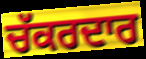
ਚੱਕਰਦਾਰ